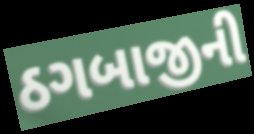
ઠગબાજીની